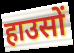
हाउसों